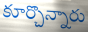
కూర్చొన్నారు